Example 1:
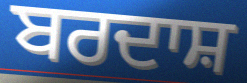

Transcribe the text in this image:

ਬਰਦਾਸ਼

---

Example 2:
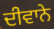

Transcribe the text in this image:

ਦੀਵਾਨੇ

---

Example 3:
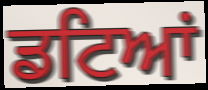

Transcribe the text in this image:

ਡਟਿਆਂ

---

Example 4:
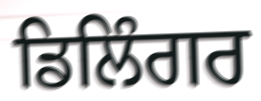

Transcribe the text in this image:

ਡਿਲਿੰਗਰ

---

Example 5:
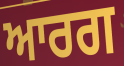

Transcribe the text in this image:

ਆਰਗ